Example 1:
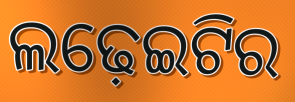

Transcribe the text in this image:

ଲଢ଼େଇଟିର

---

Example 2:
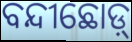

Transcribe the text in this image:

ବନ୍ଦୀଛୋଡ଼୍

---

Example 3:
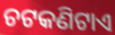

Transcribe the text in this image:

ଚଟକଣିଟାଏ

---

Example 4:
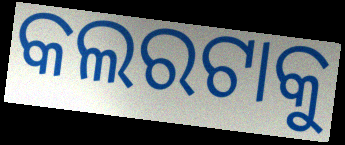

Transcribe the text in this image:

କଲରଟାକୁ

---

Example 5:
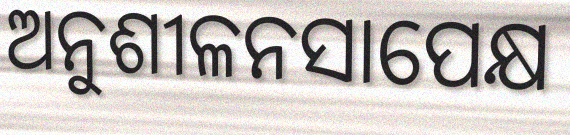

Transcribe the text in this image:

ଅନୁଶୀଳନସାପେକ୍ଷ